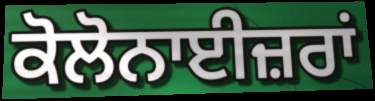
ਕੋਲੋਨਾਈਜ਼ਰਾਂ